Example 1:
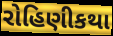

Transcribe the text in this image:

રોહિણીકથા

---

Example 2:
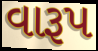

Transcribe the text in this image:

વારૂપ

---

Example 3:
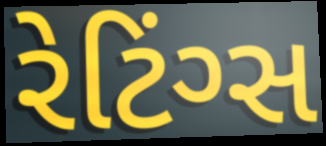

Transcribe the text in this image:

રેટિંગ્સ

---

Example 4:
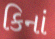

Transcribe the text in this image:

કિનાં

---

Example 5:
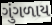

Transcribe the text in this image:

ગુંગળાય